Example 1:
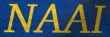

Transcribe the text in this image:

NAAI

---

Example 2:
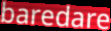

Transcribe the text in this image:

baredare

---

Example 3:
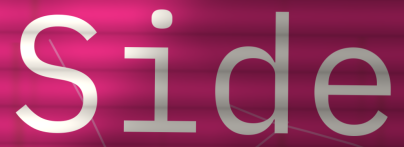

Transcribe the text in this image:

Side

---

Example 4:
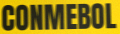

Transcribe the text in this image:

CONMEBOL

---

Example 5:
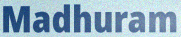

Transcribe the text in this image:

Madhuram